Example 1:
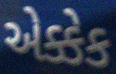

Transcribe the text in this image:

એક્કેક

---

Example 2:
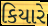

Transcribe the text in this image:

કિયારે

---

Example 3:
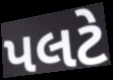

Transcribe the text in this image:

પલટે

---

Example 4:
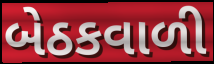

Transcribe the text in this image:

બેઠકવાળી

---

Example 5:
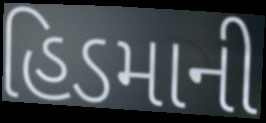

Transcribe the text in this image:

હિડમાની